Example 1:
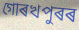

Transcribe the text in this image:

গোৰখপুৰৰ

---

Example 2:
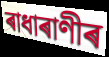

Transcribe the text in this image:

ৰাধাৰাণীৰ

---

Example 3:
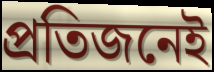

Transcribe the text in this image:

প্ৰতিজনেই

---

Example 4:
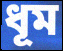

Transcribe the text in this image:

ধূম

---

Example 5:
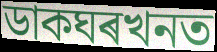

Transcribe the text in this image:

ডাকঘৰখনত